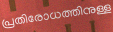
പ്രതിരോധത്തിനുള്ള